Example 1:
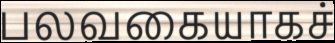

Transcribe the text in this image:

பலவகையாகச்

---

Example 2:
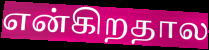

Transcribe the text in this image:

என்கிறதால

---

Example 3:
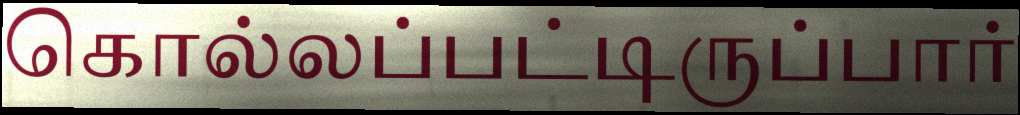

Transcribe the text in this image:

கொல்லப்பட்டிருப்பார்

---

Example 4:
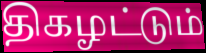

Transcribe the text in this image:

திகழட்டும்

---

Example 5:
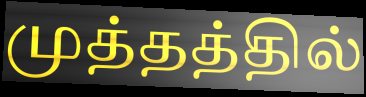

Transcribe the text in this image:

முத்தத்தில்